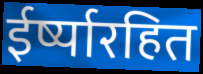
ईर्ष्यारहित